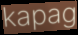
kapag